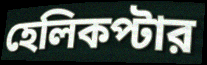
হেলিকপ্টার